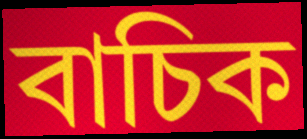
বাচিক